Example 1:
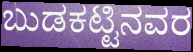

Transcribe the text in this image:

ಬುಡಕಟ್ಟಿನವರ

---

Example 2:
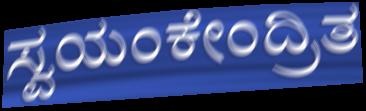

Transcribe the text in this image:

ಸ್ವಯಂಕೇಂದ್ರಿತ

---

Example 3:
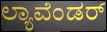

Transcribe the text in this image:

ಲ್ಯಾವೆಂಡರ್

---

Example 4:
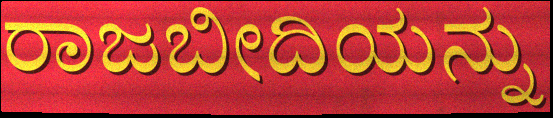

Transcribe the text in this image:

ರಾಜಬೀದಿಯನ್ನು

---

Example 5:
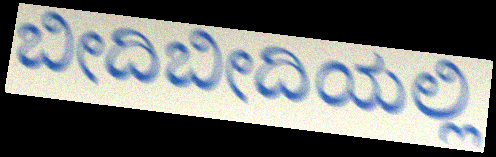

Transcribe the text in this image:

ಬೀದಿಬೀದಿಯಲ್ಲಿ